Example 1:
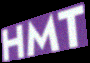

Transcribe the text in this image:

HMT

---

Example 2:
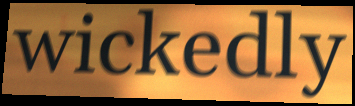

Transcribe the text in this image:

wickedly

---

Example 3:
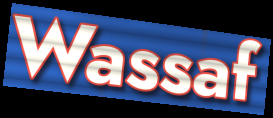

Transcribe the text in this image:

Wassaf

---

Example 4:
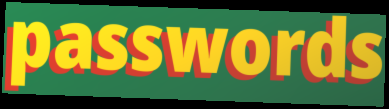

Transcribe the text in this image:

passwords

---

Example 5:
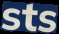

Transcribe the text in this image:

sts